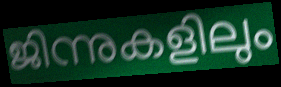
ജിന്നുകളിലും